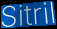
Sitril